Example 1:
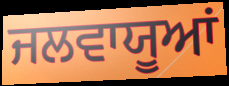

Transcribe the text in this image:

ਜਲਵਾਯੂਆਂ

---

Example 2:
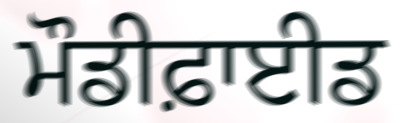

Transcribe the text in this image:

ਮੌਡੀਫ਼ਾਈਡ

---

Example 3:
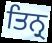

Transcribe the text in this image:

ਤਿਨ੍ਰ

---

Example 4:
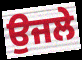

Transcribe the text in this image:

ਉਜਲੇ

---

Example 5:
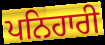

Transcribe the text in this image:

ਪਨਿਹਾਰੀ